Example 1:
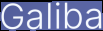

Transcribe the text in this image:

Galiba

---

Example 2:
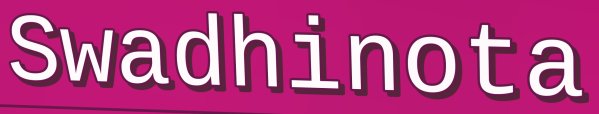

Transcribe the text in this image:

Swadhinota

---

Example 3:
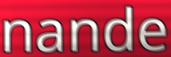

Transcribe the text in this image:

nande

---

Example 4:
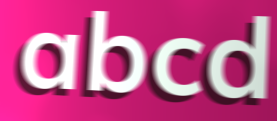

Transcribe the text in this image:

abcd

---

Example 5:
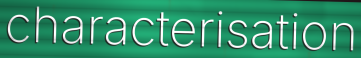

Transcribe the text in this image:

characterisation